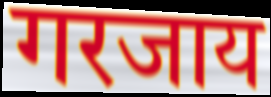
गरजाय